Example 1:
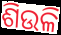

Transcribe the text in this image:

ଶିଉଳି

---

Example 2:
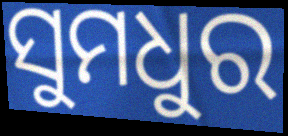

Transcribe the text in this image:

ସୁମଧୁର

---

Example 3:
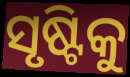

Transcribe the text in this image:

ସୃଷ୍ଟିକୁ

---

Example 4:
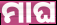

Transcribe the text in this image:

ମାଘ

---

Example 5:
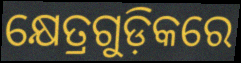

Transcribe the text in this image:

କ୍ଷେତ୍ରଗୁଡ଼ିକରେ